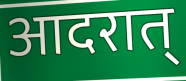
आदरात्